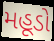
મહૂડો